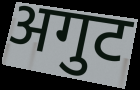
अगुट